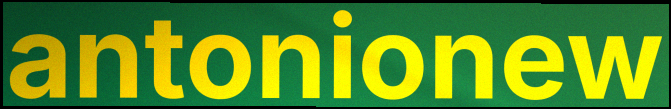
antonionew